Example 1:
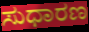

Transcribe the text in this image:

ಸುಧಾರಣ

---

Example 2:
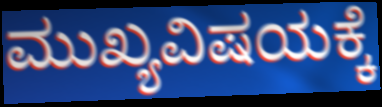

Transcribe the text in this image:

ಮುಖ್ಯವಿಷಯಕ್ಕೆ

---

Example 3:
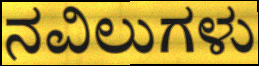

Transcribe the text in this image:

ನವಿಲುಗಳು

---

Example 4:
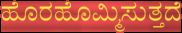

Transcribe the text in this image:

ಹೊರಹೊಮ್ಮಿಸುತ್ತದೆ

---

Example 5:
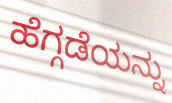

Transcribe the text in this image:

ಹೆಗ್ಗಡೆಯನ್ನು